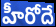
హీరోదే